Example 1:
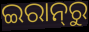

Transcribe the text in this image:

ଇରାନ୍‌ରୁ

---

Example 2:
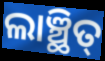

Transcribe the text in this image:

ଲାଞ୍ଛିତ୍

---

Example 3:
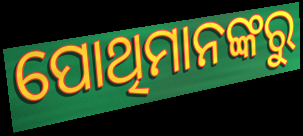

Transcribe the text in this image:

ପୋଥିମାନଙ୍କରୁ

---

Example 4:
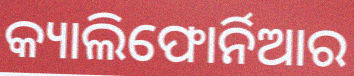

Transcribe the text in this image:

କ୍ୟାଲିଫୋର୍ନିଆର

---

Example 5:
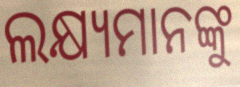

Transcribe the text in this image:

ଲକ୍ଷ୍ୟମାନଙ୍କୁ